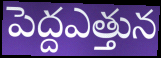
పెద్దఎత్తున